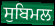
ਸੁਬਿਮਲ